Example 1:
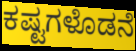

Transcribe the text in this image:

ಕಷ್ಟಗಳೊಡನೆ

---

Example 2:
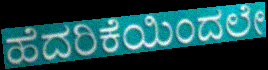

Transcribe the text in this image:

ಹೆದರಿಕೆಯಿಂದಲೇ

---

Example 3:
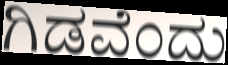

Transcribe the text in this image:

ಗಿಡವೆಂದು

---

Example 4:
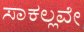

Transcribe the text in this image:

ಸಾಕಲ್ಲವೇ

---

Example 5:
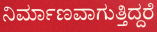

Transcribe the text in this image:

ನಿರ್ಮಾಣವಾಗುತ್ತಿದ್ದರೆ